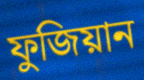
ফুজিয়ান